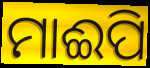
ମାଈପି